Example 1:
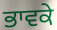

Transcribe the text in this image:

ਭਾਵਕੇ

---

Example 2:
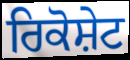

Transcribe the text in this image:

ਰਿਕੋਸ਼ੇਟ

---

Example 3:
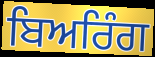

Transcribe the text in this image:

ਬਿਅਰਿੰਗ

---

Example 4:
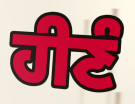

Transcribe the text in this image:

ਹੀਣੰ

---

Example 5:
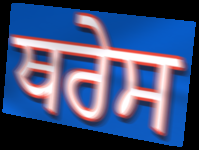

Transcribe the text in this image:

ਥਰੇਸ